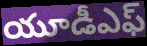
యూడీఎఫ్